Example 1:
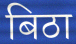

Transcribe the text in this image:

बिठा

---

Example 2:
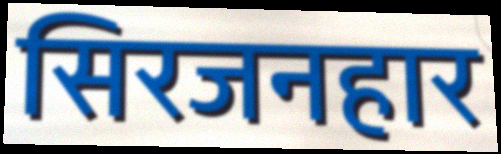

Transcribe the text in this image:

सिरजनहार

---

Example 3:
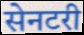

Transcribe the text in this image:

सेनटरी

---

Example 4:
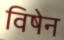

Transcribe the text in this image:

विषेन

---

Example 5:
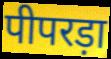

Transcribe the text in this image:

पीपरड़ा